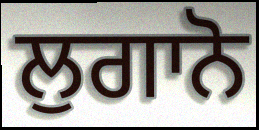
ਲੁਗਾਨੋ